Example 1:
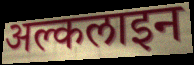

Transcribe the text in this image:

अल्कलाइन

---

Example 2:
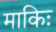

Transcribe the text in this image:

माकिः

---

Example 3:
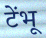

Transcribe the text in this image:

टेंभू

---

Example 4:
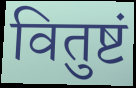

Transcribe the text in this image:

वितुष्टं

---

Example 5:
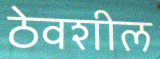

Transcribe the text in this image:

ठेवशील